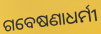
ଗବେଷଣାଧର୍ମୀ